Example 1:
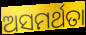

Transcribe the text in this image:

ଅସମର୍ଥତା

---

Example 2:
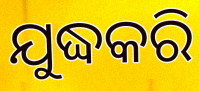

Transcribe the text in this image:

ଯୁଦ୍ଧକରି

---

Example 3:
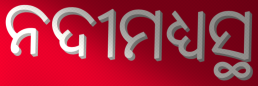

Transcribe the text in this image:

ନଦୀମଧ୍ୟସ୍ଥ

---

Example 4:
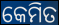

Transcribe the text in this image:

କେମିତ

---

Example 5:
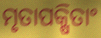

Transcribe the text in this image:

ମୃତାପକ୍ଷିତାଂ